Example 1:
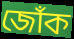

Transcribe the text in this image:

জোঁক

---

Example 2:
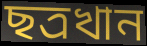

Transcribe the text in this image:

ছত্রখান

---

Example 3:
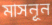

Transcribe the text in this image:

মাসনূন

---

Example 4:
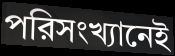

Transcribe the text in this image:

পরিসংখ্যানেই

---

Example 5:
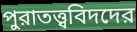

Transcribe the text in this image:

পুরাতত্ত্ববিদদের